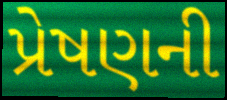
પ્રેષણની